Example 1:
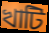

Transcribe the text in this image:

খাটি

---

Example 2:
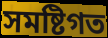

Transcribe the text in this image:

সমষ্টিগত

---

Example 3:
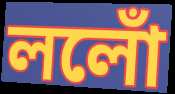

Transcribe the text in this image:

ললোঁ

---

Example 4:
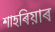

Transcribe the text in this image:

শাহৰিয়াৰ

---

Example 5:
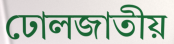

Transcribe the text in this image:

ঢোলজাতীয়